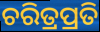
ଚରିତ୍ରପ୍ରତି